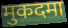
मुकदमा